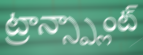
ట్రాన్స్ప్లాంట్